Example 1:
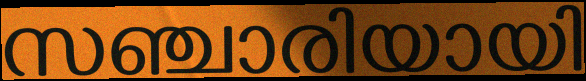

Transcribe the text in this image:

സഞ്ചാരിയായി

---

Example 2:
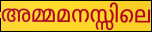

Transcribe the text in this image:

അമ്മമനസ്സിലെ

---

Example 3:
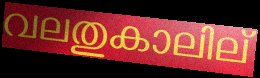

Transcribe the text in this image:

വലതുകാലില്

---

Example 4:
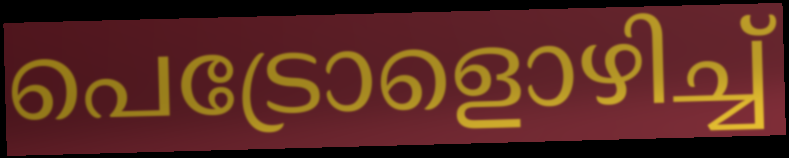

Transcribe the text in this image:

പെട്രോളൊഴിച്ച്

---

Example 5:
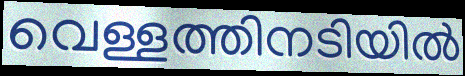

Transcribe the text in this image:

വെള്ളത്തിനടിയിൽ